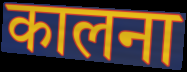
कालना